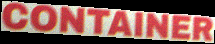
CONTAINER